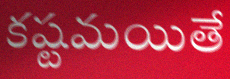
కష్టమయితే